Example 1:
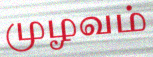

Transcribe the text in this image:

முழவம்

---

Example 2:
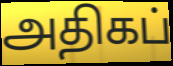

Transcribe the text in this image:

அதிகப்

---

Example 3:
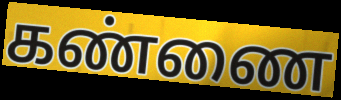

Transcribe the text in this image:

கண்ணை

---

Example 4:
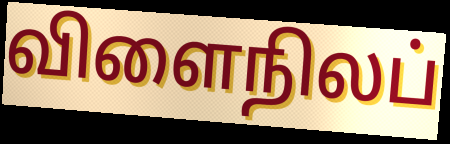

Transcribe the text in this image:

விளைநிலப்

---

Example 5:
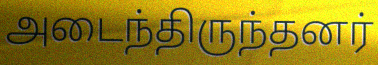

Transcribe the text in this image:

அடைந்திருந்தனர்